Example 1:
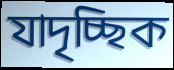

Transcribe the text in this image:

যাদৃচ্ছিক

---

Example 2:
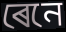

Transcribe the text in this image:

ৰেনে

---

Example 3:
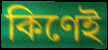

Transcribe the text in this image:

কিণেই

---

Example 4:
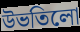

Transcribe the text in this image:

উভতিলো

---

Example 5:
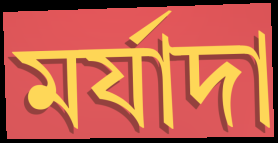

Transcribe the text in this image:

মৰ্যাদা